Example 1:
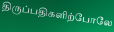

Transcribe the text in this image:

திருப்பதிகளிற்போலே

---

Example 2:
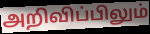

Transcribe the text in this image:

அறிவிப்பிலும்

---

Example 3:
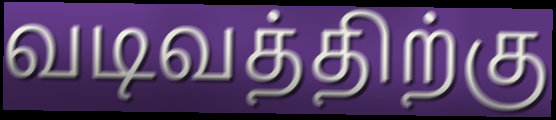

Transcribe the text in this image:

வடிவத்திற்கு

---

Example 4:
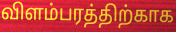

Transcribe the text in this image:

விளம்பரத்திற்காக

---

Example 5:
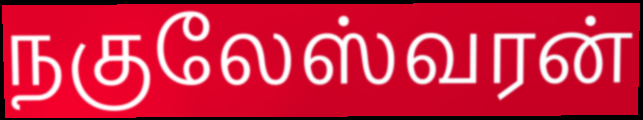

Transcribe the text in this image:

நகுலேஸ்வரன்